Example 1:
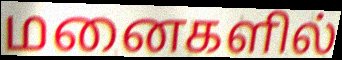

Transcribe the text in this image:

மனைகளில்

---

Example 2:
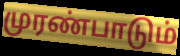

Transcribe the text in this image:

முரண்பாடும்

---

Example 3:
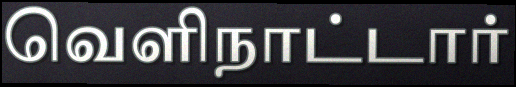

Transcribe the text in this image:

வெளிநாட்டார்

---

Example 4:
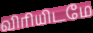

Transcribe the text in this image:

விரியிடமே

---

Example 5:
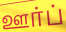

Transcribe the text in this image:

ஊர்ப்